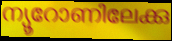
ന്യൂറോണിലേക്കു